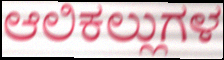
ಆಲಿಕಲ್ಲುಗಳ